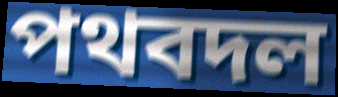
পথবদল